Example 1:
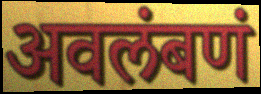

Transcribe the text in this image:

अवलंबणं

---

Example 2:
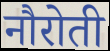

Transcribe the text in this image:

नौरोती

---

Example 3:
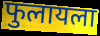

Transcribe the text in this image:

फुलायला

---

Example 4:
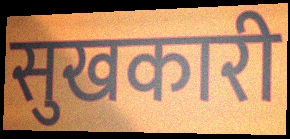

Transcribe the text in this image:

सुखकारी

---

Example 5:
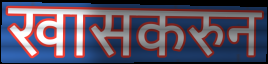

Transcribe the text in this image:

खासकरुन